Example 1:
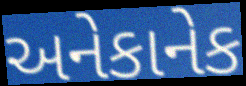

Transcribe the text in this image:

અનેકાનેક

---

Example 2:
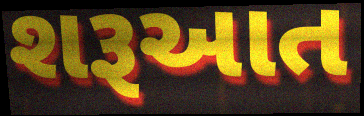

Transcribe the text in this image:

શરૂઆત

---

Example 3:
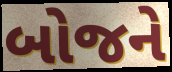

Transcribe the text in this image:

બોજને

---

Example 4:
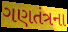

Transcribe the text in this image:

ગણતંત્રના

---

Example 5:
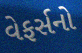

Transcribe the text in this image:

વેફર્સનો